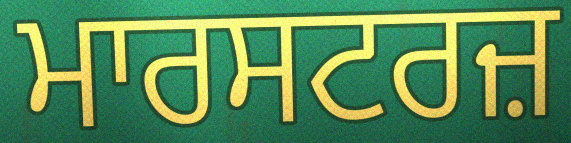
ਮਾਰਸਟਰਜ਼